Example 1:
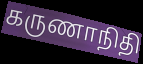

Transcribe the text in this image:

கருணாநிதி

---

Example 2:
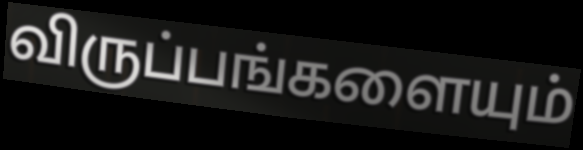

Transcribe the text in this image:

விருப்பங்களையும்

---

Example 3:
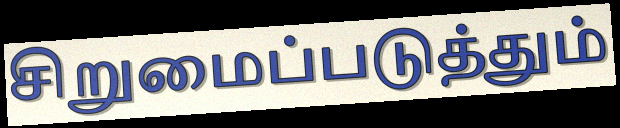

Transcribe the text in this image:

சிறுமைப்படுத்தும்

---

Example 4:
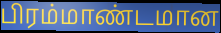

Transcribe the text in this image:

பிரம்மாண்டமான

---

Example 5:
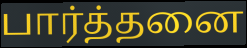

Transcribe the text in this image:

பார்த்தனை